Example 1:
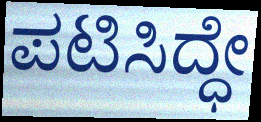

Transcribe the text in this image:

ಪಟಿಸಿದ್ಧೇ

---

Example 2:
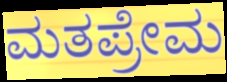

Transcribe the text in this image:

ಮತಪ್ರೇಮ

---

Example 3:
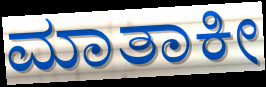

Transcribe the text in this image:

ಮಾತಾಕೀ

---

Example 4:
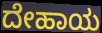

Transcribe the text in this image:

ದೇಹಾಯ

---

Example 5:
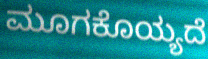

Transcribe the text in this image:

ಮೂಗಕೊಯ್ಯದೆ